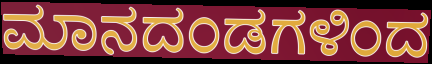
ಮಾನದಂಡಗಳಿಂದ